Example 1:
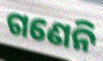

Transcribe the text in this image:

ଗଣେନି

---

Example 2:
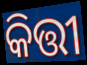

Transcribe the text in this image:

କିତ୍ତୀ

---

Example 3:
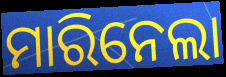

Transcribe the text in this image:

ମାରିନେଲା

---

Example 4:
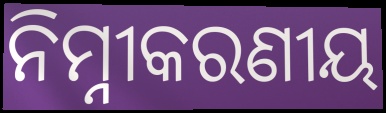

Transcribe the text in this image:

ନିମ୍ନୀକରଣୀୟ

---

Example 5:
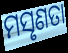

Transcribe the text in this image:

ମସୃଣତା